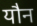
यौन